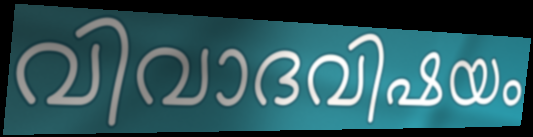
വിവാദവിഷയം